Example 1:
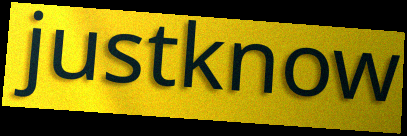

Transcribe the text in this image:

justknow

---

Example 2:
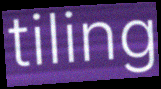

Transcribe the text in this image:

tiling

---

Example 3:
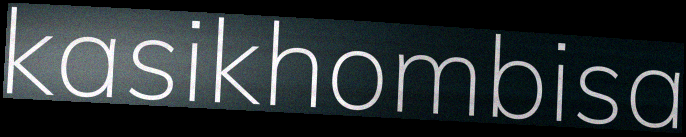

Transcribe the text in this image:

kasikhombisa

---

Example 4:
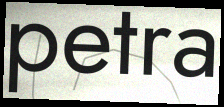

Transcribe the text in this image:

petra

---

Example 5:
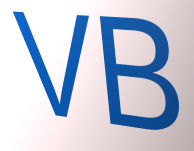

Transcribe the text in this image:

VB